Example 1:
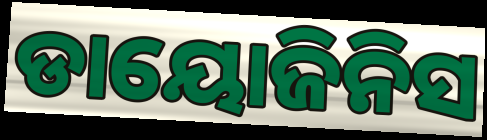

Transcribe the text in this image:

ଡାୟୋଜିନିସ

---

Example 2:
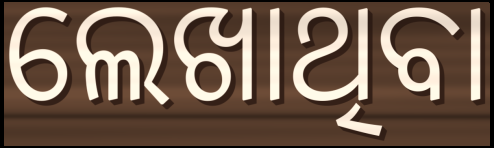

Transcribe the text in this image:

ଲେଖାଥିବା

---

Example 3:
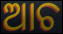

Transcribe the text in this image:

ଆଚ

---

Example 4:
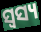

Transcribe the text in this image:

ସ୍ଵସ୍ୟ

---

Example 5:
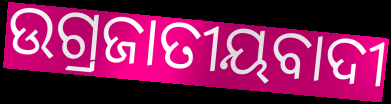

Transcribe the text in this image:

ଉଗ୍ରଜାତୀୟବାଦୀ